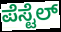
ಪೆಸ್ಟೆಲ್